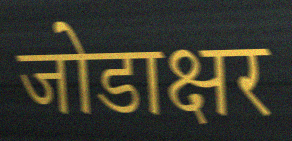
जोडाक्षर